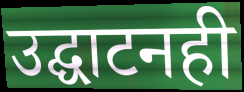
उद्घाटनही